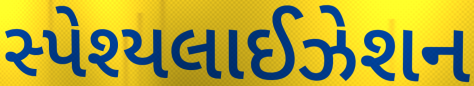
સ્પેશ્યલાઈઝેશન